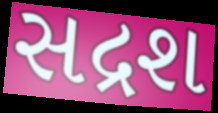
સદ્રશ